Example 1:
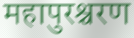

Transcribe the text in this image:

महापुरश्चरण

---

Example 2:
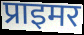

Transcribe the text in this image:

प्राइमर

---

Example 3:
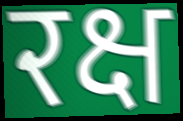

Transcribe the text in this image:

रक्ष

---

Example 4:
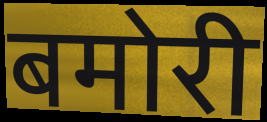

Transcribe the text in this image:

बमोरी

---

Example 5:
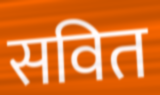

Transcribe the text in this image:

सवित